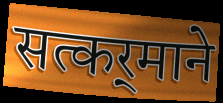
सत्कर्माने